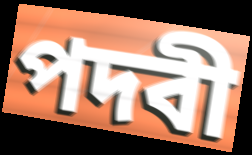
পদবী